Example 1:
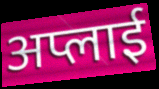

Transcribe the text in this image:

अप्‍लाई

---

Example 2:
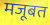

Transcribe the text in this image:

मजूबत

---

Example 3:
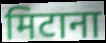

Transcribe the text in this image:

मिटाना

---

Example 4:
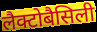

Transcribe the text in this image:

लैक्टोबैसिली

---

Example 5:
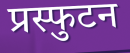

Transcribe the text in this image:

प्रस्‍फुटन